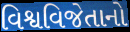
વિશ્વવિજેતાનો